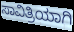
ಸಾವಿತ್ರಿಯಾಗಿ